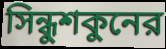
সিন্ধুশকুনের